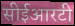
सीईआरटी